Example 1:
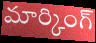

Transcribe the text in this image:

మార్కింగ్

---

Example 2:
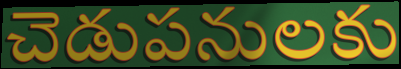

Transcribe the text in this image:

చెడుపనులకు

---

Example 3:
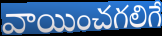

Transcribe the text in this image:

వాయించగలిగే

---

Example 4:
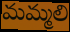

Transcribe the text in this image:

మమ్మలి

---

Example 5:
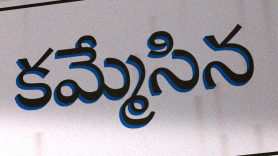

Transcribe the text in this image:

కమ్మేసిన